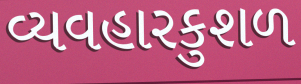
વ્યવહારકુશળ